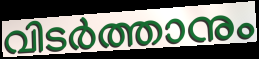
വിടർത്താനും